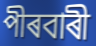
পীৰবাৰী